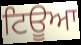
ਟਿਊਆ